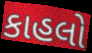
કાહલો